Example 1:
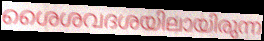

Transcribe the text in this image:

ശൈശവദശയിലായിരുന്ന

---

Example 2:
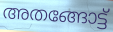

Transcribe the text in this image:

അതങ്ങോട്ട്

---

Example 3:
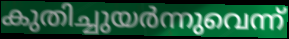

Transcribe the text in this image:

കുതിച്ചുയർന്നുവെന്ന്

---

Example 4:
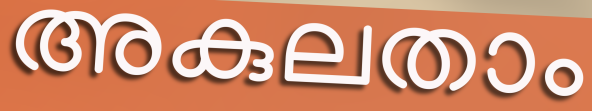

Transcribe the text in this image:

അകുലതാം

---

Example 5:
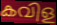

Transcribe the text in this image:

കവിള